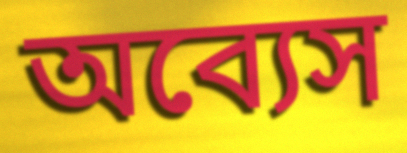
অব্যেস